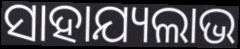
ସାହାଯ୍ୟଲାଭ